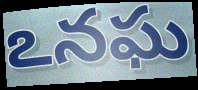
ఽనఘ